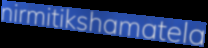
nirmitikshamatela